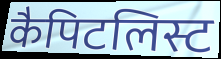
कैपिटलिस्ट